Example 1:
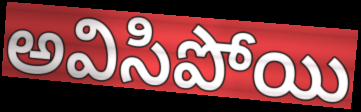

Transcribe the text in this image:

అవిసిపోయి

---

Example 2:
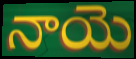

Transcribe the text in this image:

నాయె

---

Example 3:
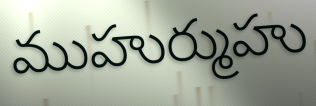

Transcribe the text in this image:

ముహుర్ముహు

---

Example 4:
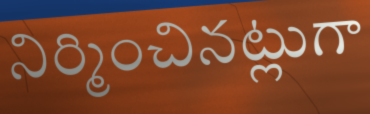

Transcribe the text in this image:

నిర్మించినట్లుగా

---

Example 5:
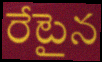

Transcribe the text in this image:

రేటైన